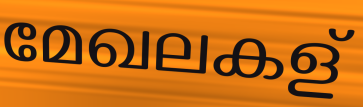
മേഖലകള്